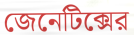
জেনেটিক্সের